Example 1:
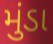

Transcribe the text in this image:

મુંડા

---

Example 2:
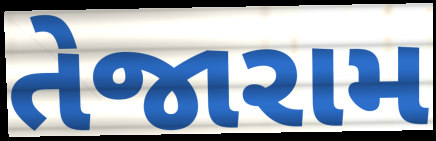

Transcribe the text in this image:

તેજારામ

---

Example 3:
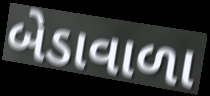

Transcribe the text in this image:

બેડાવાળા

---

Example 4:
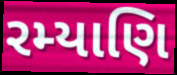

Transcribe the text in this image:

રમ્યાણિ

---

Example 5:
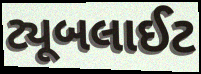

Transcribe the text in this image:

ટ્યૂબલાઈટ